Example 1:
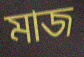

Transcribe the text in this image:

মাজ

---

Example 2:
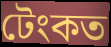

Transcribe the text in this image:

টেংকত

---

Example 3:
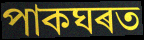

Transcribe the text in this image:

পাকঘৰত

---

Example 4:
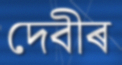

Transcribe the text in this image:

দেবীৰ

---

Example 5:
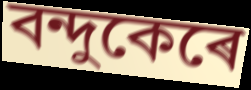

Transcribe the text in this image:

বন্দুকেৰে